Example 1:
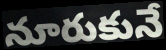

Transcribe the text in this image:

నూరుకునే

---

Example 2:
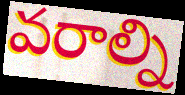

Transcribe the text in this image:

వరాల్ని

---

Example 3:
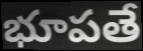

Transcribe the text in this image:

భూపతే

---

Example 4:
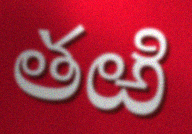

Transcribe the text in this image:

తఱి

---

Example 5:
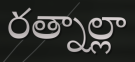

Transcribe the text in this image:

రత్నాల్లా